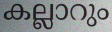
കല്ലാറും